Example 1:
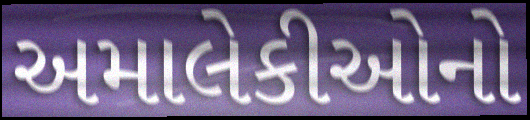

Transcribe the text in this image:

અમાલેકીઓનો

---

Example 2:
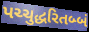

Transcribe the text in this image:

પચ્ચુદ્ધરિતબ્બં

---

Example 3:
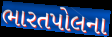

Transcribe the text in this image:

ભારતપોલના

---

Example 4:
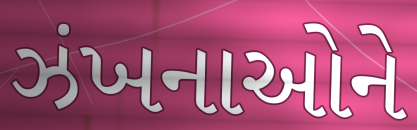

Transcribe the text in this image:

ઝંખનાઓને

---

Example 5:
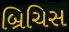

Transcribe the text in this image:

બ્રિચિસ